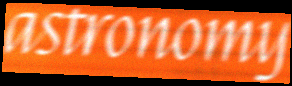
astronomy